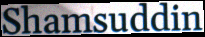
Shamsuddin